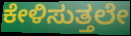
ಕೇಳಿಸುತ್ತಲೇ